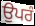
ਉਪਰੰ